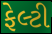
ફેલ્ટી